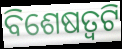
ବିଶେଷତ୍ୱଟି